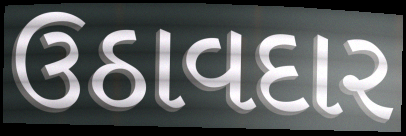
ઉઠાવદાર